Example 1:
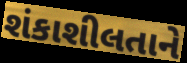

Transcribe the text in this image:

શંકાશીલતાને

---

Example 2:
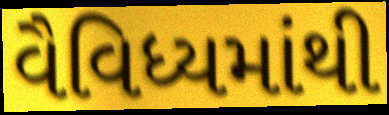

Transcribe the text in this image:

વૈવિધ્યમાંથી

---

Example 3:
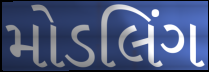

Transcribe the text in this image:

મોડલિંગ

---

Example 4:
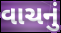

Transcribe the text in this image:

વાચનું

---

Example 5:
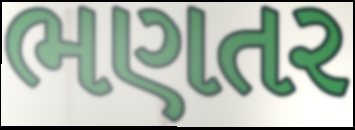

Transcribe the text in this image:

ભણતર